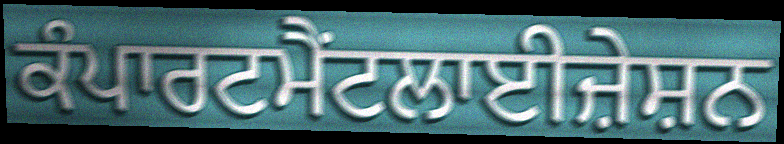
ਕੰਪਾਰਟਮੈਂਟਲਾਈਜ਼ੇਸ਼ਨ